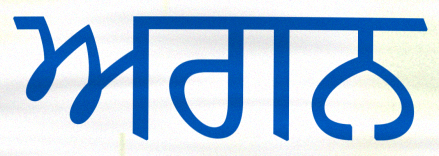
ਅਗਨ